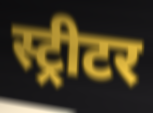
स्ट्रीटर